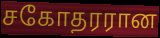
சகோதரரான